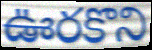
ఊరకొని